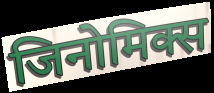
जिनोमिक्स